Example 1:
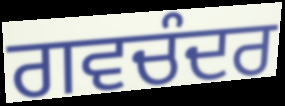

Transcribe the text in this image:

ਗਵਚੰਦਰ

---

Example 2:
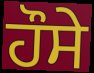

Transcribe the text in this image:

ਹੌਸੇ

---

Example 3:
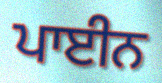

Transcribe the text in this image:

ਪਾਈਨ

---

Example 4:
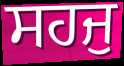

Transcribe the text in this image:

ਸਹਜੁ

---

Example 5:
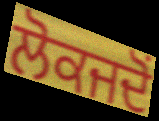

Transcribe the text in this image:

ਲੋਕਜਦੋਂ